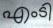
എംടി